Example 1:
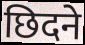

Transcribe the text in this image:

छिदने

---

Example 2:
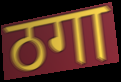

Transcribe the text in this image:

ठगा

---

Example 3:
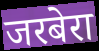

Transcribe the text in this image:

जरबेरा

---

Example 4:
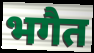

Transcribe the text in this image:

भगैत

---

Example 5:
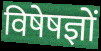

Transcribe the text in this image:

विषेषज्ञों